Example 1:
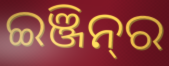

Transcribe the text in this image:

ଇଞ୍ଜିନ୍‌ର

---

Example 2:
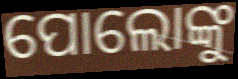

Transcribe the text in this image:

ପୋଲୋଙ୍କୁ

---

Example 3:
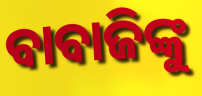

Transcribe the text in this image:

ବାବାଜିଙ୍କୁ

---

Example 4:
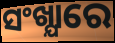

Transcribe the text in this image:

ସଂଖ୍ଯାରେ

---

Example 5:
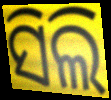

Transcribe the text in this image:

ସିଲି